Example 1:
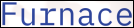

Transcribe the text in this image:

Furnace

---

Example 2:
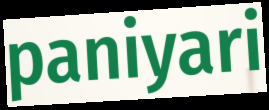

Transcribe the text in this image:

paniyari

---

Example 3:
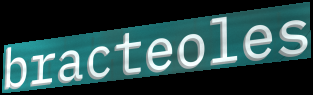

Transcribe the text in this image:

bracteoles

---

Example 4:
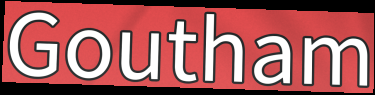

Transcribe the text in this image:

Goutham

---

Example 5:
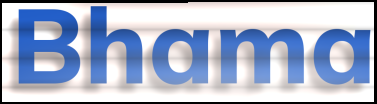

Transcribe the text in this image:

Bhama